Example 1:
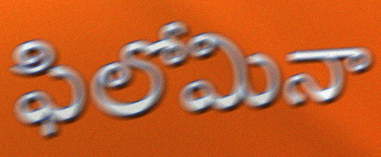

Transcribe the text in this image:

ఫిలోమినా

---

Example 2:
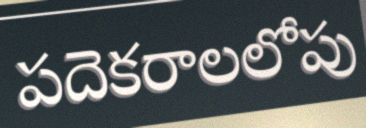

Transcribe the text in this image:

పదెకరాలలోపు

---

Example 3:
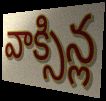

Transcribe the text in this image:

వాక్సిన్ల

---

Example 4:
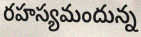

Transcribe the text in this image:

రహస్యమందున్న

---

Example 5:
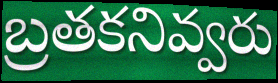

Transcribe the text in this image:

బ్రతకనివ్వరు